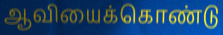
ஆவியைக்கொண்டு